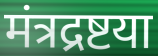
मंत्रद्रष्टया